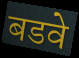
बडवे